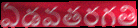
ఏడవతరగతి